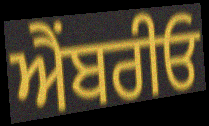
ਐਂਬਰੀਓ